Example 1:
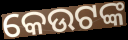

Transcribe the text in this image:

କେଉଟଙ୍କ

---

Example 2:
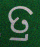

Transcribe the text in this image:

ତ୍ର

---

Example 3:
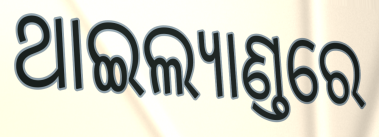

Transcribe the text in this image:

ଥାଇଲ୍ୟାଣ୍ଡରେ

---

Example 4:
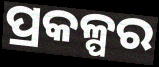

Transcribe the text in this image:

ପ୍ରକଳ୍ପର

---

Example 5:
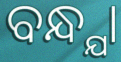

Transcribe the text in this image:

ବନ୍ଧ୍ଯା